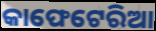
କାଫେଟେରିଆ